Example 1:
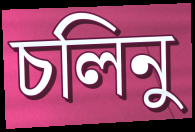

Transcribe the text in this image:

চলিনু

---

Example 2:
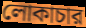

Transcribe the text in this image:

লোকাচার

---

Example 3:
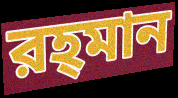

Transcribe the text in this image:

রহ্‌মান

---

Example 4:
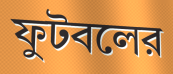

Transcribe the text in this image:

ফুটবলের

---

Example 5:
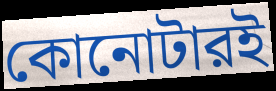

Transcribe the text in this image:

কোনোটারই